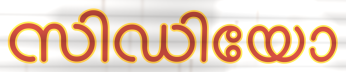
സിഡിയോ